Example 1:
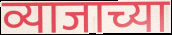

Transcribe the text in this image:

व्याजाच्या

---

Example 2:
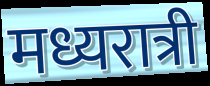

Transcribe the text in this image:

मध्यरात्री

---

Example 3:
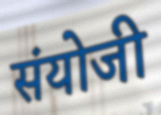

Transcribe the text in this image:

संयोजी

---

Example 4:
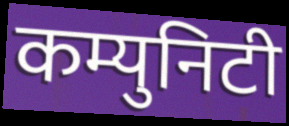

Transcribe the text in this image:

कम्युनिटी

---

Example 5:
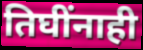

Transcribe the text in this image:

तिघींनाही